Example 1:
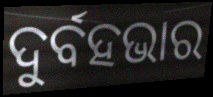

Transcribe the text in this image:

ଦୁର୍ବହଭାର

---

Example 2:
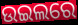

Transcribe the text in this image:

ଉଇଲରେ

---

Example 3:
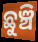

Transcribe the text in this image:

ଛୁଞ୍ଚି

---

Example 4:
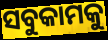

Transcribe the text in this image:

ସବୁକାମକୁ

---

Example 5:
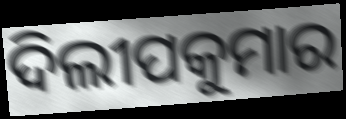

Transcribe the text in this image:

ଦିଲୀପକୁମାର